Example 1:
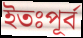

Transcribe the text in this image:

ইতঃপূর্ব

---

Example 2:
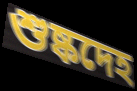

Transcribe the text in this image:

শুষ্কদেহ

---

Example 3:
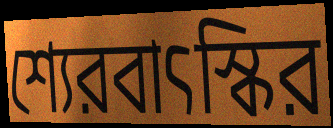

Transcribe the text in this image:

শ্যেরবাৎস্কির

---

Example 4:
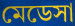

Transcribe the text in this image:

মেডেসা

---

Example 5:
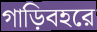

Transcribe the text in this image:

গাড়িবহরে